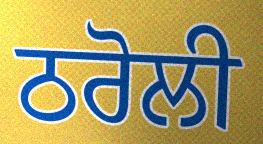
ਠਰੋਲੀ